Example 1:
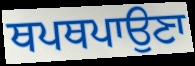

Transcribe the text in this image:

ਥਪਥਪਾਉਣਾ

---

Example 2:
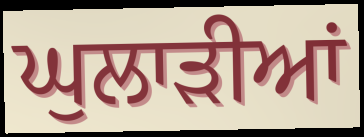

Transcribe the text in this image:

ਘੁਲਾੜੀਆਂ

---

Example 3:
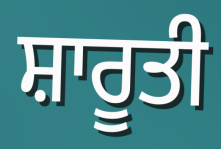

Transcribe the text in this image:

ਸ਼ਾਰੂਤੀ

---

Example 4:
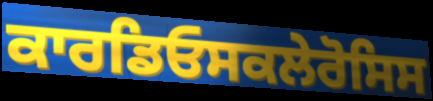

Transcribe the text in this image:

ਕਾਰਡਿਓਸਕਲੇਰੋਸਿਸ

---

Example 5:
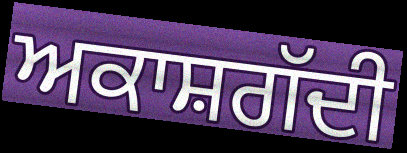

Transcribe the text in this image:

ਅਕਾਸ਼ਗੱਦੀ